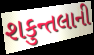
શકુન્તલાની